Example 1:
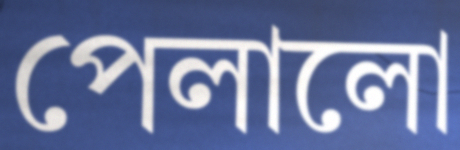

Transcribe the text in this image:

পেলালো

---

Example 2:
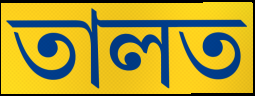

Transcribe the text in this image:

তালত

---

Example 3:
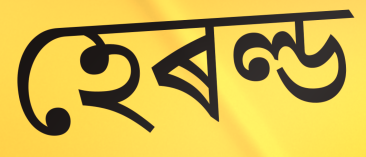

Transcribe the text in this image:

হেৰল্ড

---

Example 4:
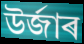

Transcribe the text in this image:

উৰ্জাৰ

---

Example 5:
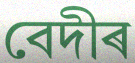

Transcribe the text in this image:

বেদীৰ